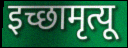
इच्छामृत्यू